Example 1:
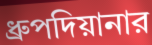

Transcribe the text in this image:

ধ্রুপদিয়ানার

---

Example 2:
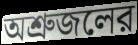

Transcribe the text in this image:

অশ্রুজলের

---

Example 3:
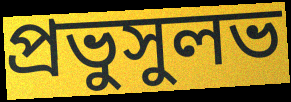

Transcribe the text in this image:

প্রভুসুলভ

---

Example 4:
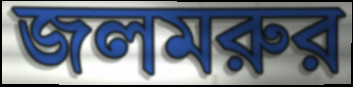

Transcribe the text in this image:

জলমরুর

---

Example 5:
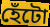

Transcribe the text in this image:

হেঁটো